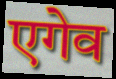
एगेव